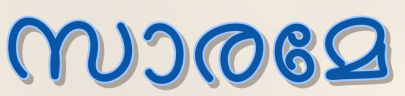
സാരമേ